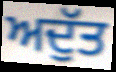
ਅਦੁੱਤ